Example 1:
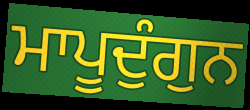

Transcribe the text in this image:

ਮਾਪੂਦੁੰਗੁਨ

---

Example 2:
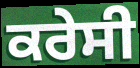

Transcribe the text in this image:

ਕਰੇਸੀ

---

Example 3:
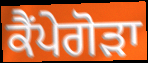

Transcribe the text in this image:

ਕੈਂਪੇਗੋੜਾ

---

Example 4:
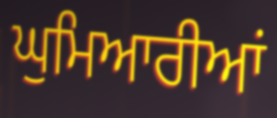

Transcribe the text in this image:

ਘੁਮਿਆਰੀਆਂ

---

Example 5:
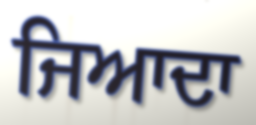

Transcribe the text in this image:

ਜਿਆਦਾ